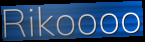
Rikoooo